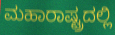
ಮಹಾರಾಷ್ಟ್ರದಲ್ಲಿ